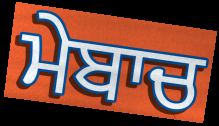
ਮੇਬਾਚ